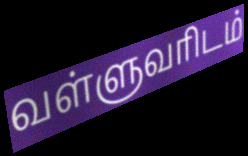
வள்ளுவரிடம்